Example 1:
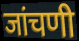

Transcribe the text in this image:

जांचणी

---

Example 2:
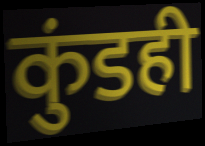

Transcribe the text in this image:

कुंडही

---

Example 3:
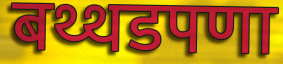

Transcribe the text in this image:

बथ्थडपणा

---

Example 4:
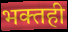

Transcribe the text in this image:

भक्तही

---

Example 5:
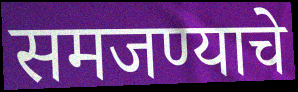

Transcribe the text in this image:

समजण्याचे